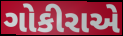
ગોકીરાએ